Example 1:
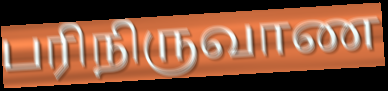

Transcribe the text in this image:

பரிநிருவாண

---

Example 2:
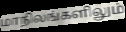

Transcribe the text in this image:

மாநிலங்களிலும்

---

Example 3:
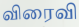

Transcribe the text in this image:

விரைவி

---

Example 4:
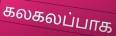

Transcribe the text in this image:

கலகலப்பாக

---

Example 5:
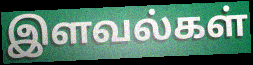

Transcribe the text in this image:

இளவல்கள்